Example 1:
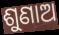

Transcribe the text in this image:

ଶୁଣାଅ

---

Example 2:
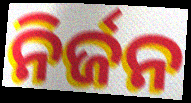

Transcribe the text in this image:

ନିର୍ଜନ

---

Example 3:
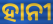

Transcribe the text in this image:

ହାନୀ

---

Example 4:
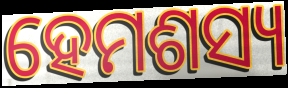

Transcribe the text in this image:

ହେମଶସ୍ୟ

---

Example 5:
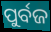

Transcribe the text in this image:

ପୁର୍ବଜ